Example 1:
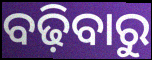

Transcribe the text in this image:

ବଢ଼ିବାରୁ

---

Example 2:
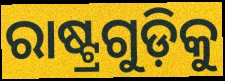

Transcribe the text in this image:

ରାଷ୍ଟ୍ରଗୁଡ଼ିକୁ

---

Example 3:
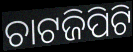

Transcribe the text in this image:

ଚାଟଜିପିଟି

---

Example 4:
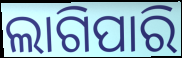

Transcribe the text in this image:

ଲାଗିପାରି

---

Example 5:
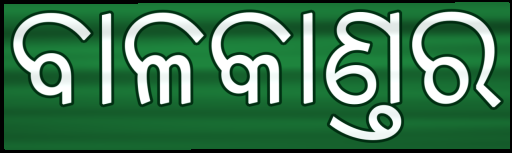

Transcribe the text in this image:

ବାଳକାଣ୍ତର